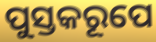
ପୁସ୍ତକରୂପେ